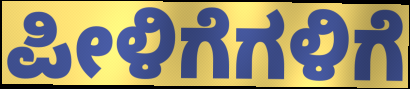
ಪೀಳಿಗೆಗಳಿಗೆ